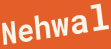
Nehwal